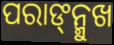
ପରାଙ୍‌ନ୍ମୁଖ